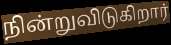
நின்றுவிடுகிறார்